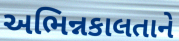
અભિન્નકાલતાને